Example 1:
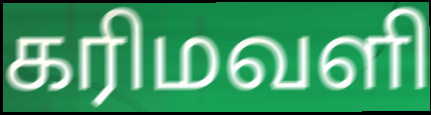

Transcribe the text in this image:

கரிமவளி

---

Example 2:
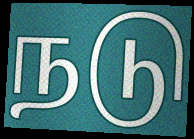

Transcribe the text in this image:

நடு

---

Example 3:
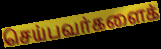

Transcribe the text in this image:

செய்பவர்களைக்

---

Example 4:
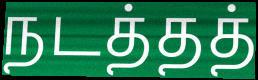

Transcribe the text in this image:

நடத்தத்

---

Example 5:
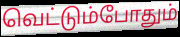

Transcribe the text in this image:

வெட்டும்போதும்